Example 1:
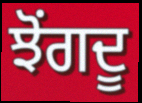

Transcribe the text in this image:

ਝੋਂਗਦੂ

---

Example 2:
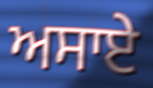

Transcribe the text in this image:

ਅਸਾਏ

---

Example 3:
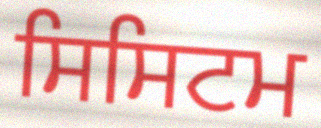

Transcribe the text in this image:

ਸਿਸਿਟਮ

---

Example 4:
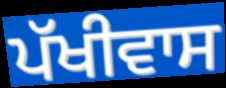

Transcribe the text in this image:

ਪੱਖੀਵਾਸ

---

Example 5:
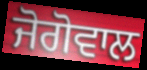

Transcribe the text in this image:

ਜੋਗੋਵਾਲ